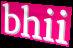
bhii